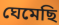
ঘেমেছি